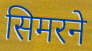
सिमरने